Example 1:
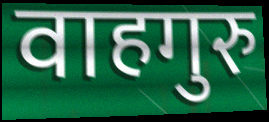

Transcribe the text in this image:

वाहगुरु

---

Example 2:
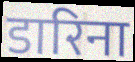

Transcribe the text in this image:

डारिना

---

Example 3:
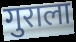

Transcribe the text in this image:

गुराला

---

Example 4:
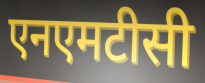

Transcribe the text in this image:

एनएमटीसी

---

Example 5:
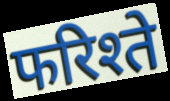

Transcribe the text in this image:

फरिश्ते